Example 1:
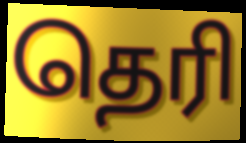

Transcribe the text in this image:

தெரி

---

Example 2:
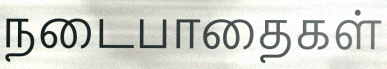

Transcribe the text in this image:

நடைபாதைகள்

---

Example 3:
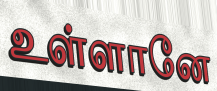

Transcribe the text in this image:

உள்ளானே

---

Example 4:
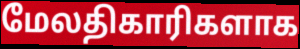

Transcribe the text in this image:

மேலதிகாரிகளாக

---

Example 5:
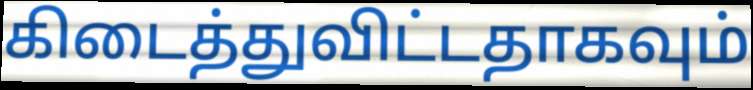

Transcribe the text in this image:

கிடைத்துவிட்டதாகவும்